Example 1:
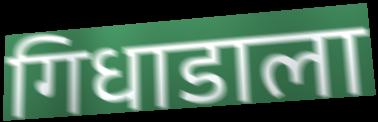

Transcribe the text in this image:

गिधाडाला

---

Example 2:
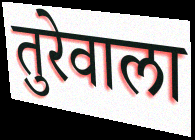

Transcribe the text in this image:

तुरेवाला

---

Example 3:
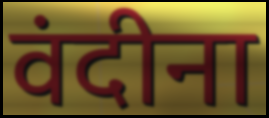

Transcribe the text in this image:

वंदीना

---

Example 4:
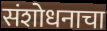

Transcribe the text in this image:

संशोधनाचा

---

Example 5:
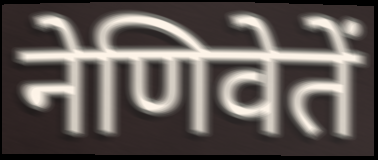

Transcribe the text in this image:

नेणिवेतें